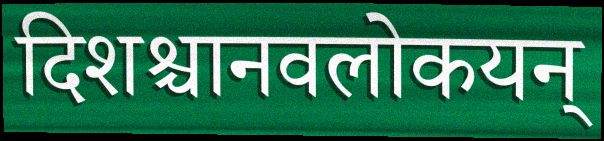
दिशश्चानवलोकयन्